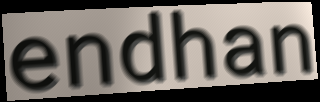
endhan